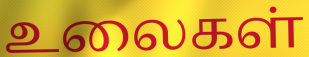
உலைகள்